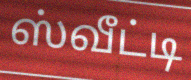
ஸ்வீட்டி